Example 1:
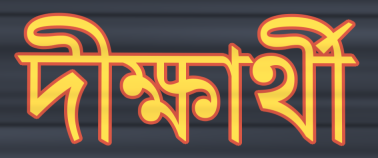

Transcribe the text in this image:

দীক্ষার্থী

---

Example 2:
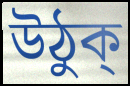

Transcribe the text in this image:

উঠুক্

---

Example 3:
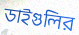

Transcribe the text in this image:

ডাইগুলির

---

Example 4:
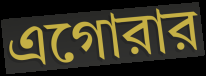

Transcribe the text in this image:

এগোরার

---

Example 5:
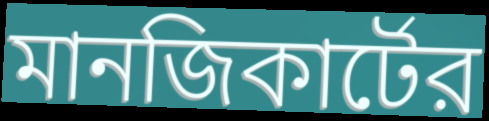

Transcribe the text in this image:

মানজিকার্টের